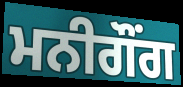
ਮਨੀਗੌਂਗ